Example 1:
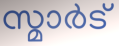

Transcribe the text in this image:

സ്മാർട്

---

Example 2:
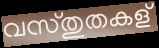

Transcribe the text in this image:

വസ്തുതകള്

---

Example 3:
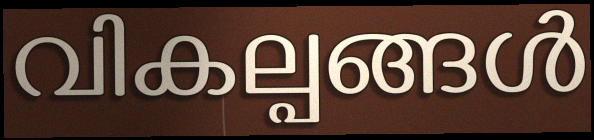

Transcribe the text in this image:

വികല്പങ്ങൾ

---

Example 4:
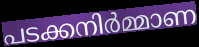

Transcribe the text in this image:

പടക്കനിർമ്മാണ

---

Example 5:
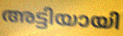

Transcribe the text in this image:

അട്ടിയായി